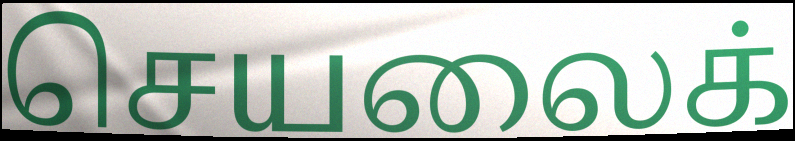
செயலைக்